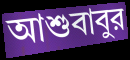
আশুবাবুর